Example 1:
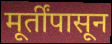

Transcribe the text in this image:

मूर्तींपासून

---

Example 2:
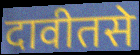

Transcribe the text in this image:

दावीतसे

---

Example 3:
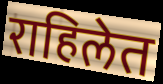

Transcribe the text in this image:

राहिलेत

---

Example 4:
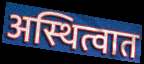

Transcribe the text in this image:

अस्थित्वात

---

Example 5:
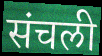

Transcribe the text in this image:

संचली